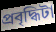
প্রবৃদ্ধিটা